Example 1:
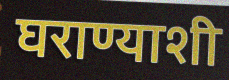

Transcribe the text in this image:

घराण्याशी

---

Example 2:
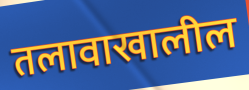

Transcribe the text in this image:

तलावाखालील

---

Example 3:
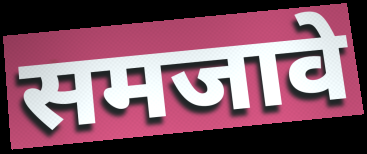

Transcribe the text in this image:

समजावे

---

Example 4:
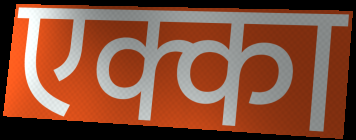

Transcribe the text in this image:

एक्का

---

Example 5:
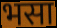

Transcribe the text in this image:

भसा